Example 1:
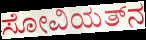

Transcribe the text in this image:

ಸೋವಿಯತ್‌ನ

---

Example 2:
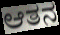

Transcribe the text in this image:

ಆತನ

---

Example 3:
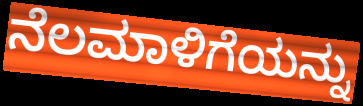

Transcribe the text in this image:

ನೆಲಮಾಳಿಗೆಯನ್ನು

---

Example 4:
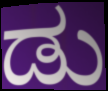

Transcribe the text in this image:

ಡು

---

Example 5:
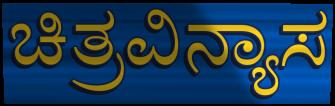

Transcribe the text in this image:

ಚಿತ್ರವಿನ್ಯಾಸ